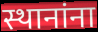
स्थानांना